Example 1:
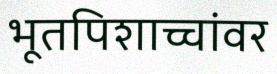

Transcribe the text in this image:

भूतपिशाच्चांवर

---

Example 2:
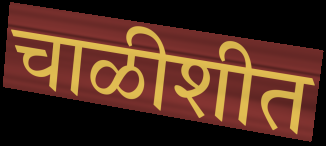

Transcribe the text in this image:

चाळीशीत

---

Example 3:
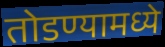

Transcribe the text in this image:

तोडण्यामध्ये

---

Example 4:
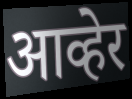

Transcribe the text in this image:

आव्हेर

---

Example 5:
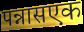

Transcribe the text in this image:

पन्नासएक